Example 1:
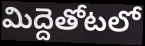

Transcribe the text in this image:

మిద్దెతోటలో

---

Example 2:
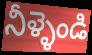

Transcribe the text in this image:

నీళ్ళెండి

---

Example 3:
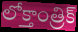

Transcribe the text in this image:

లోక్తాంత్రిక్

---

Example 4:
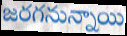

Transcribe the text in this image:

జరగనున్నాయి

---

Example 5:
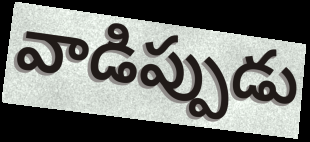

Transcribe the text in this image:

వాడిప్పుడు